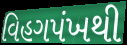
વિહગપંખથી